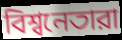
বিশ্বনেতারা